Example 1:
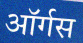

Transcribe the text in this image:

ऑर्गस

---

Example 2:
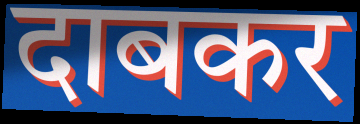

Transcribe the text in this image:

दाबकर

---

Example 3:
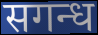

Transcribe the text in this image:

सगन्ध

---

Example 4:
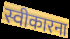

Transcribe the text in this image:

स्वीकारना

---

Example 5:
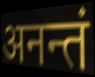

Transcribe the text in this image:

अनन्तं